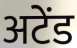
अटेंड